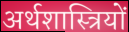
अर्थशास्त्रियों